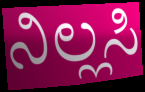
ನಿಲ್ಲಸಿ